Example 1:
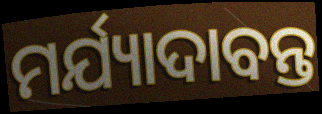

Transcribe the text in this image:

ମର୍ଯ୍ୟାଦାବନ୍ତ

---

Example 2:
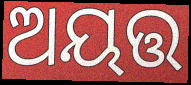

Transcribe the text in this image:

ଅୟତ୍ତ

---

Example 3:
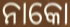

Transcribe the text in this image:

ନାକୋ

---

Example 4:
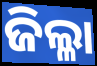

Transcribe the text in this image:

ଜିଲ୍ଳା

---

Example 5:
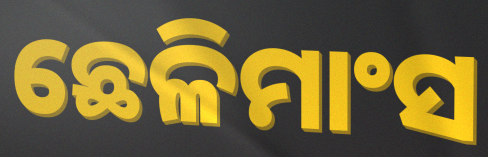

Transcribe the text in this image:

ଛେଳିମାଂସ